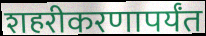
शहरीकरणापर्यंत